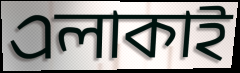
এলাকাই